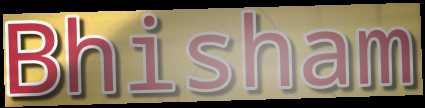
Bhisham